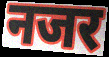
नजर